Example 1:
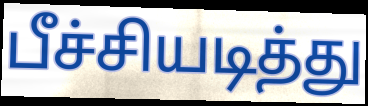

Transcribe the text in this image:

பீச்சியடித்து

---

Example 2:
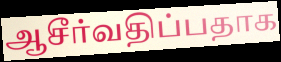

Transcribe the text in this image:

ஆசீர்வதிப்பதாக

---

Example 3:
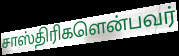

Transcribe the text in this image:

சாஸ்திரிகளென்பவர்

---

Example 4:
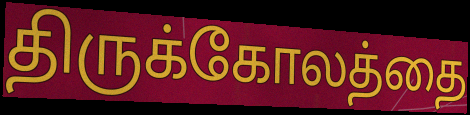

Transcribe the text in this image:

திருக்கோலத்தை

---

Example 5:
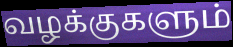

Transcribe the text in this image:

வழக்குகளும்